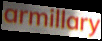
armillary